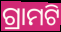
ଗ୍ରାମଟି